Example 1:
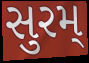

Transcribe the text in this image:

સુરમ્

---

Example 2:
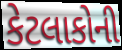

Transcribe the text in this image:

કેટલાકોની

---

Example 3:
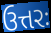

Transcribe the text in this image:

ઉત્તરઃ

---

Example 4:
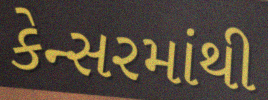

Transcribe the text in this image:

કેન્સરમાંથી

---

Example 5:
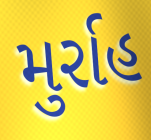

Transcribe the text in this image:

મુર્રાહ